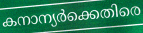
കനാന്യർക്കെതിരെ